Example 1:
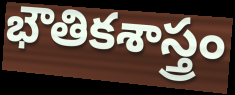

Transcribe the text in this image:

భౌతికశాస్త్రం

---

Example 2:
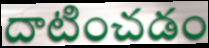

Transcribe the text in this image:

దాటించడం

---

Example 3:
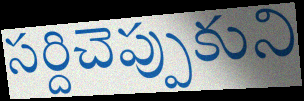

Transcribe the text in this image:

సర్దిచెప్పుకుని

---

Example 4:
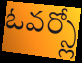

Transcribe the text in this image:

ఓవర్స్లో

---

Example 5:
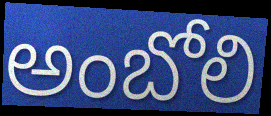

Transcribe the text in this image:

అంబోలి